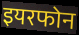
इयरफोन